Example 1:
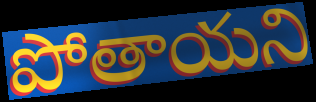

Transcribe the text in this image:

పోతాయని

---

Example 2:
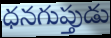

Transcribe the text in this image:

ధనగుప్తుడు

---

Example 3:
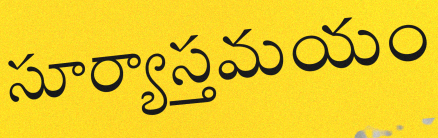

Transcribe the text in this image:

సూర్యాస్తమయం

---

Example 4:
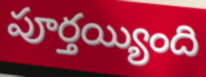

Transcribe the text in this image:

పూర్తయ్యింది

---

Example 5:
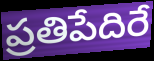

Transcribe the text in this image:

ప్రతిపేదిరే